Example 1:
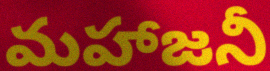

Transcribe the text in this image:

మహాజనీ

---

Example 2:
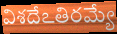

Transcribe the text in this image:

విశదేఽతిరమ్యే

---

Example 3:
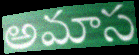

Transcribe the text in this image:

అమాస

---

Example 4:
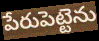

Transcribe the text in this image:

పేరుపెట్టెను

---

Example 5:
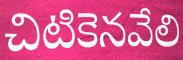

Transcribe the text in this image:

చిటికెనవేలి